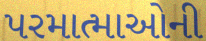
પરમાત્માઓની